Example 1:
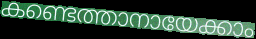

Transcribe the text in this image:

കണ്ടെത്താനായേക്കാം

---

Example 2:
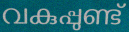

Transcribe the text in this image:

വകുപ്പുണ്ട്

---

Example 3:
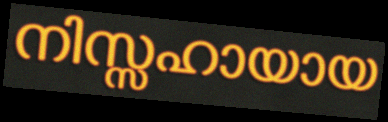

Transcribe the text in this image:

നിസ്സഹായായ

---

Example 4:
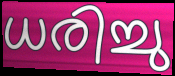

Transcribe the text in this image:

ധരിച്ചു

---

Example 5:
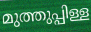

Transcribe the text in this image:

മുത്തുപ്പിള്ള